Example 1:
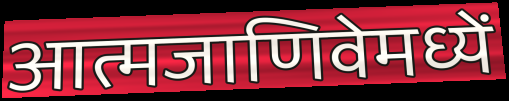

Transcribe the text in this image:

आत्मजाणिवेमध्यें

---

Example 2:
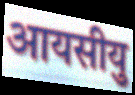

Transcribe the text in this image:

आयसीयु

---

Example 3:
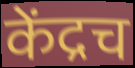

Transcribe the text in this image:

केंद्रच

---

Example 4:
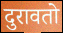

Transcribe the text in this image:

दुरावतो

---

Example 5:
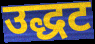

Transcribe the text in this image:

उद्धट